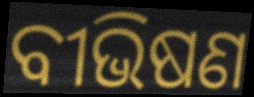
ବୀଭିଷଣ